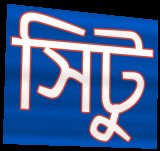
সিটু